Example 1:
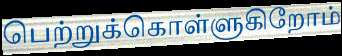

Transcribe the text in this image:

பெற்றுக்கொள்ளுகிறோம்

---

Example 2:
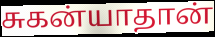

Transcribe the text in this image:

சுகன்யாதான்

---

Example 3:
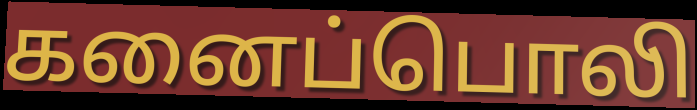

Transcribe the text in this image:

கனைப்பொலி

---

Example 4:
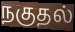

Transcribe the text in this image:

நகுதல்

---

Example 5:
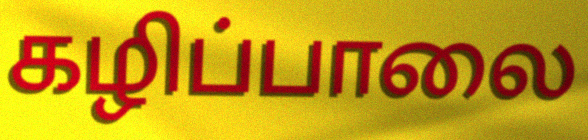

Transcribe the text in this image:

கழிப்பாலை